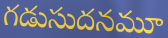
గడుసుదనమూ